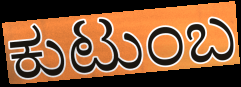
ಕುಟುಂಬ